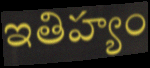
ఇతిహ్యం